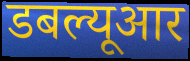
डबल्यूआर